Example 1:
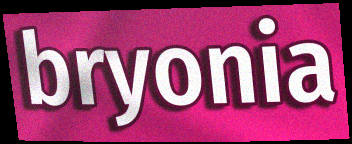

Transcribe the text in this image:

bryonia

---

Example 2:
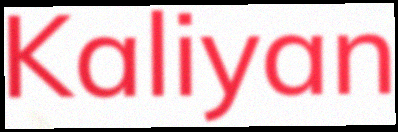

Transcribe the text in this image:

Kaliyan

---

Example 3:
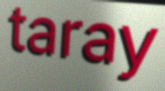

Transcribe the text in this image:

taray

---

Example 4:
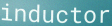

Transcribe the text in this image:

inductor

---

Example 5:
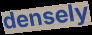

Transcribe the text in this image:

densely